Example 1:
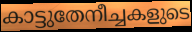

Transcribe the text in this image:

കാട്ടുതേനീച്ചകളുടെ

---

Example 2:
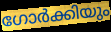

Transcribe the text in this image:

ഗോർക്കിയും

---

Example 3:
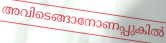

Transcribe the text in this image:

അവിടെങ്ങാനോണപ്പുകിൽ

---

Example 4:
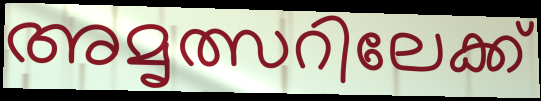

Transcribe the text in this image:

അമൃത്സറിലേക്ക്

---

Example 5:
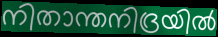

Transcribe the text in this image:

നിതാന്തനിദ്രയിൽ